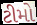
ટીમો